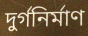
দুর্গনির্মাণ